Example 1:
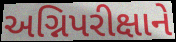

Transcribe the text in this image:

અગ્નિપરીક્ષાને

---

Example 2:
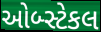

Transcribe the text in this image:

ઓબ્સ્ટેકલ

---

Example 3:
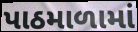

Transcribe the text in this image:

પાઠમાળામાં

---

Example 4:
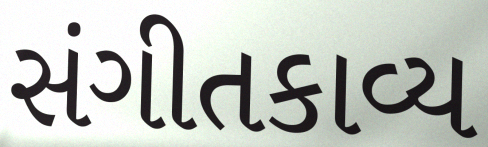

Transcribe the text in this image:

સંગીતકાવ્ય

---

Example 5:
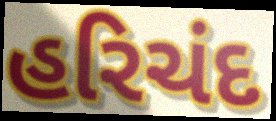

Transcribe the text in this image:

હરિચંદ